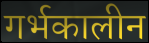
गर्भकालीन